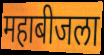
महाबीजला